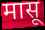
मासू